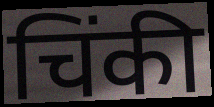
चिंकी